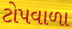
ટોપવાળા